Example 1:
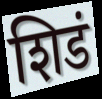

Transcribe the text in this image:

शिडं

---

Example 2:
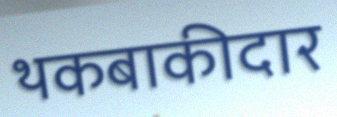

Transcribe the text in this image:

थकबाकीदार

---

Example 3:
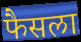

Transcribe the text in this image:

फैसला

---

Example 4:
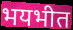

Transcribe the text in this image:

भयभीत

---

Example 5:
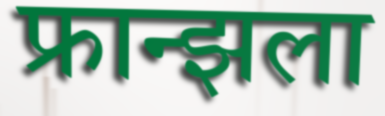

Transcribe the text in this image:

फ्रान्झला